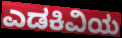
ಎಡಕಿವಿಯ